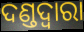
ଦଣ୍ଡଦ୍ୱାରା